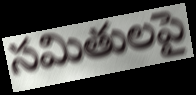
సమితులపై